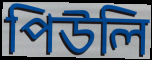
পিউলি